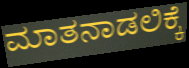
ಮಾತನಾಡಲಿಕ್ಕೆ